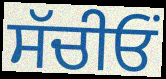
ਸੱਚੀਓਂ